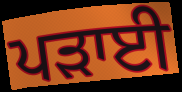
ਪੜਾਈ